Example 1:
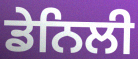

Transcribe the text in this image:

ਡੇਨਿਲੀ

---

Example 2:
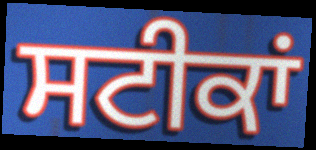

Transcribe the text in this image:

ਸਟੀਕਾਂ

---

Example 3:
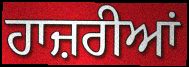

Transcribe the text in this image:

ਹਾਜ਼ਰੀਆਂ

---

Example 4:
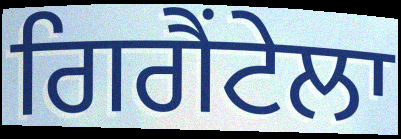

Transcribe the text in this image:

ਗਿਗੈਂਟੇਲਾ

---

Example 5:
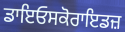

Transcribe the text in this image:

ਡਾਇਓਸਕੋਰਾਇਡਜ਼